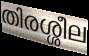
തിരശ്ശീല